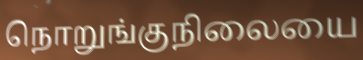
நொறுங்குநிலையை